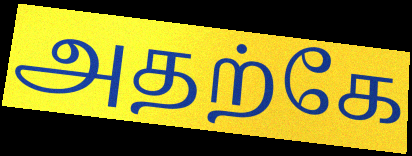
அதற்கே